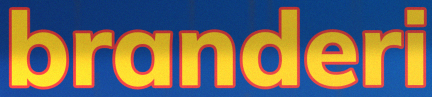
branderi